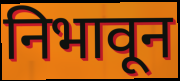
निभावून